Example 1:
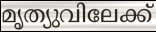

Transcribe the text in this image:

മൃത്യുവിലേക്ക്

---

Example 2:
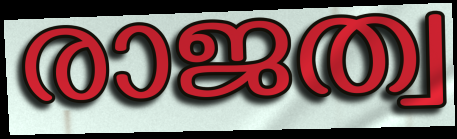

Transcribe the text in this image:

രാജത്വ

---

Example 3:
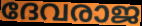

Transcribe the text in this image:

ദേവരാജ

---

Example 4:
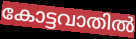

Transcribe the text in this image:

കോട്ടവാതിൽ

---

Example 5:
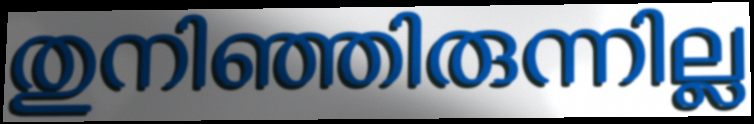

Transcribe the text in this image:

തുനിഞ്ഞിരുന്നില്ല